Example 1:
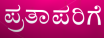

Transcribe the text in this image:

ಪ್ರತಾಪರಿಗೆ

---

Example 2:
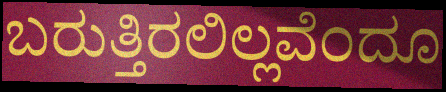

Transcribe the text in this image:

ಬರುತ್ತಿರಲಿಲ್ಲವೆಂದೂ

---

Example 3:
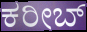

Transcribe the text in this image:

ಕರೀಬ್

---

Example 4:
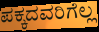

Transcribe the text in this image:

ಪಕ್ಕದವರಿಗೆಲ್ಲ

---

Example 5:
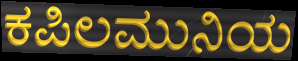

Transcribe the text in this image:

ಕಪಿಲಮುನಿಯ